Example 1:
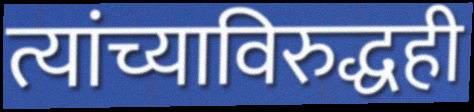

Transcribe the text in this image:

त्यांच्याविरुद्धही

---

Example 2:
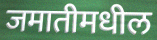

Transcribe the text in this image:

जमातीमधील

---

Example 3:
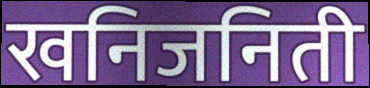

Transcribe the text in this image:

खनिजनिती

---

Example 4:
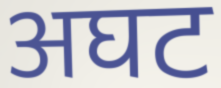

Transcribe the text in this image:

अघट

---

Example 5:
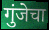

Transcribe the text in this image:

गुंजेचा